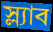
স্ল্যাব